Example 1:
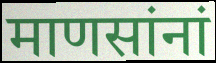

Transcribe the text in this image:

माणसांनां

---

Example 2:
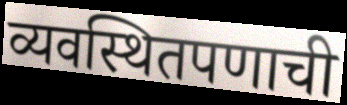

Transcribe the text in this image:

व्यवस्थितपणाची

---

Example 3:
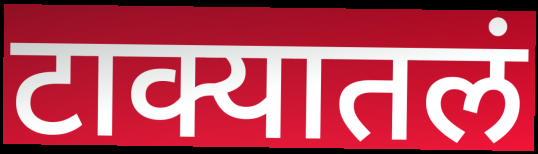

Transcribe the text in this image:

टाक्यातलं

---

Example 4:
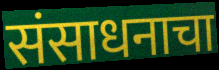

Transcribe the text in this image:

संसाधनाचा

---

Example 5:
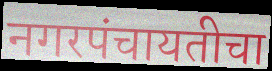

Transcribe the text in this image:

नगरपंचायतीचा